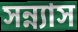
সন্ন্যাস